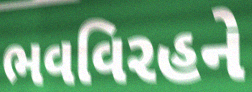
ભવવિરહને